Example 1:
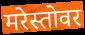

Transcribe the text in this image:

मरेस्तोवर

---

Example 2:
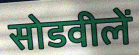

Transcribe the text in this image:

सोडवीलें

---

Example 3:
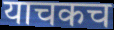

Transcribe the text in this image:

याचकच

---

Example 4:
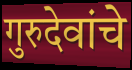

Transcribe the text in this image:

गुरुदेवांचे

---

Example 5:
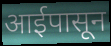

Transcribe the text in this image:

आईपासून